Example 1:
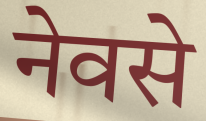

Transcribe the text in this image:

नेवसे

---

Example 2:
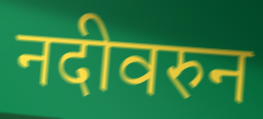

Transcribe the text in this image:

नदीवरुन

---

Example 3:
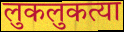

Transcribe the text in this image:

लुकलुकत्या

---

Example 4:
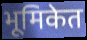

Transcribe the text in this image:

भूमिकेत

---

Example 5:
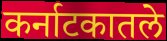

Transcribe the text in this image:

कर्नाटकातले